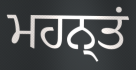
ਮਹਨ੍ਤਂ